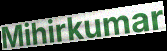
Mihirkumar